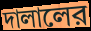
দালালের